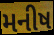
મનીષ